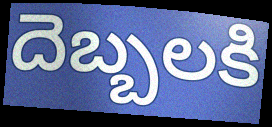
దెబ్బలకి